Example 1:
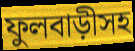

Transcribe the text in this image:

ফুলবাড়ীসহ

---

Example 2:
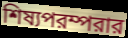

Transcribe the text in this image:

শিষ্যপরম্পরার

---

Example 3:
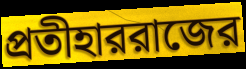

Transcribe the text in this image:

প্রতীহাররাজের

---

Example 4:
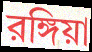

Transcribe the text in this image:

রঙ্গিয়া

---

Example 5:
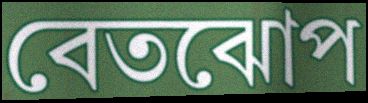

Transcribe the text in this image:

বেতঝোপ